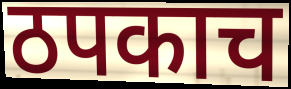
ठपकाच